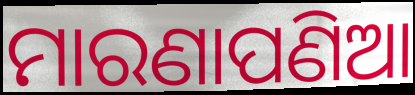
ମାରଣାପଣିଆ